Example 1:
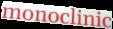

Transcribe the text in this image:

monoclinic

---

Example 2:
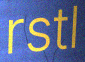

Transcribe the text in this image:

rstl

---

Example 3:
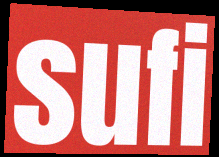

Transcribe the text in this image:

sufi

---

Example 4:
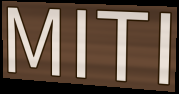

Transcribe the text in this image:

MITI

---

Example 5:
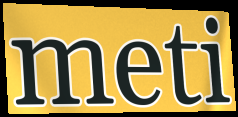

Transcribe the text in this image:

meti